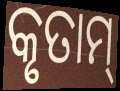
କୃତାମ୍